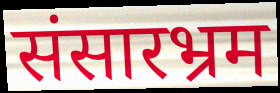
संसारभ्रम